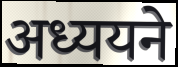
अध्ययने